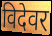
विदेवर